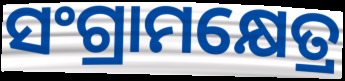
ସଂଗ୍ରାମକ୍ଷେତ୍ର